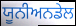
ਯੂਨੀਅਨਡੇਲ